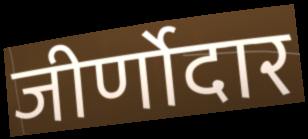
जीर्णोदार